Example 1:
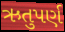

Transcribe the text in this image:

ઋતુપર્ણ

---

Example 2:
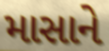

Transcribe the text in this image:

માસાને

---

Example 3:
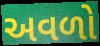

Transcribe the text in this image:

અવળો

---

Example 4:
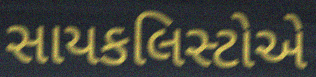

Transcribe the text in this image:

સાયકલિસ્ટોએ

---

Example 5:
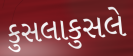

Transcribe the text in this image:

કુસલાકુસલે